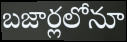
బజార్లలోనూ